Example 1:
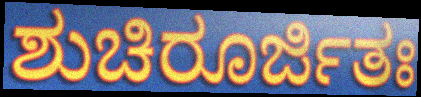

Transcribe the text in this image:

ಶುಚಿರೂರ್ಜಿತಃ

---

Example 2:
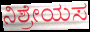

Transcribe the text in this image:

ನಿಶ್ರೇಯಸ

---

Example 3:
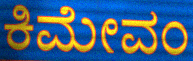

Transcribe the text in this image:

ಕಿಮೇವಂ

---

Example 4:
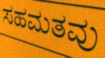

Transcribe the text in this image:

ಸಹಮತವು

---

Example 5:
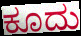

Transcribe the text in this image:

ಕೂದು